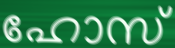
ഹോസ്